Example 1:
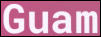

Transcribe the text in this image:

Guam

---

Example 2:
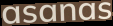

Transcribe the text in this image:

asanas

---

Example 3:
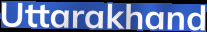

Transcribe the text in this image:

Uttarakhand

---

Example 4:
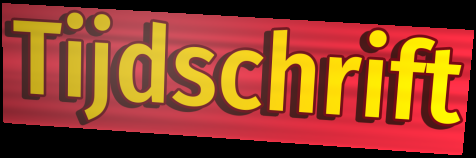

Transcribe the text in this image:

Tijdschrift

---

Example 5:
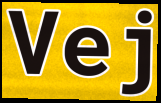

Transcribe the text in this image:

Vej